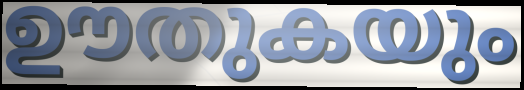
ഊതുകയും